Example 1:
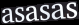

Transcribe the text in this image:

asasas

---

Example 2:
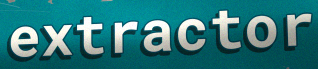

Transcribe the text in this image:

extractor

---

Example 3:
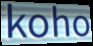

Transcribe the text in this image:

koho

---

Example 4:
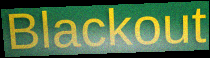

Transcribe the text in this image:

Blackout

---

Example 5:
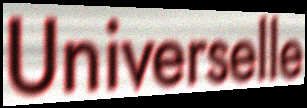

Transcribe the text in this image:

Universelle